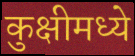
कुक्षीमध्ये